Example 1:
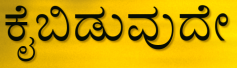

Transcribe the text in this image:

ಕೈಬಿಡುವುದೇ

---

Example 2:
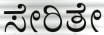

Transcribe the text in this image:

ಸೇರಿತೇ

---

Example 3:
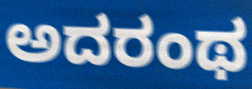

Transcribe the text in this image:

ಅದರಂಥ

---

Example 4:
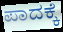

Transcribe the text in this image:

ಪಾದಕ್ಕೆ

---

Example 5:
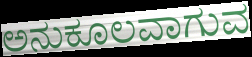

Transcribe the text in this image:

ಅನುಕೂಲವಾಗುವ